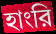
হাংরি